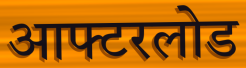
आफ्टरलोड